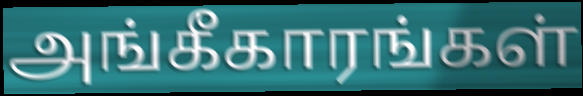
அங்கீகாரங்கள்